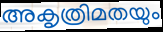
അകൃത്രിമതയും